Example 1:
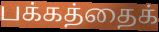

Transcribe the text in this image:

பக்கத்தைக்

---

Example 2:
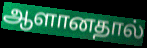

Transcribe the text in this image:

ஆளானதால்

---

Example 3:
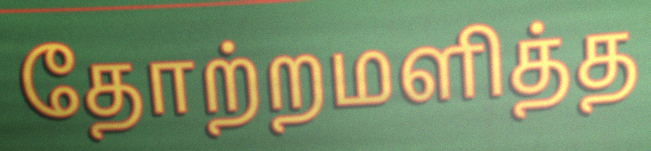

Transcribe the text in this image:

தோற்றமளித்த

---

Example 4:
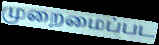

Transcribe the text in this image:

முறைமைப்பட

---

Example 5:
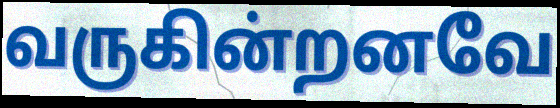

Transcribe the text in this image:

வருகின்றனவே